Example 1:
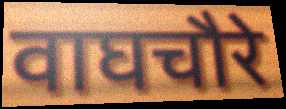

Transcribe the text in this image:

वाघचौरे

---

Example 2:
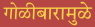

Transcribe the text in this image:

गोळीबारामुळे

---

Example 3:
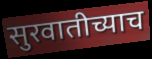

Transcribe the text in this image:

सुरवातीच्याच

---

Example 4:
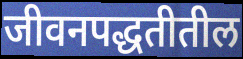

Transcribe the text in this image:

जीवनपद्धतीतील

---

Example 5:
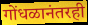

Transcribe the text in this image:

गोंधळानंतरही